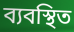
ব্যবস্থিত